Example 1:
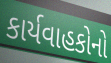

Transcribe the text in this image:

કાર્યવાહકોનો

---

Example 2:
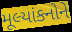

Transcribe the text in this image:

મૂલ્યાંકનોને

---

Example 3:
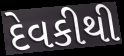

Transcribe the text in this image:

દેવકીથી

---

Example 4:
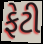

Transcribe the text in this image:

ફેટી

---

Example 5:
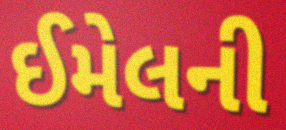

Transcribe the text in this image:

ઈમેલની